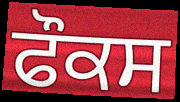
ਫੌਕਸ